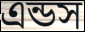
এন্ডস